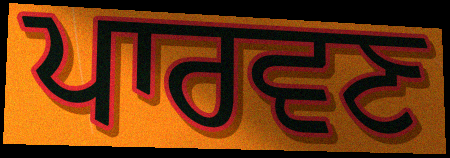
ਪਾਰਵਣ